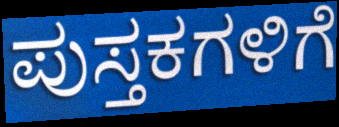
ಪುಸ್ತಕಗಳಿಗೆ